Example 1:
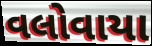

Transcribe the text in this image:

વલોવાયા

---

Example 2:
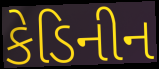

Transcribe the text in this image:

કેડિનીન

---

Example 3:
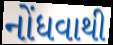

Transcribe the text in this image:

નોંધવાથી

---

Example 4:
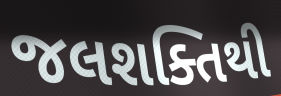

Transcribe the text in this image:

જલશક્તિથી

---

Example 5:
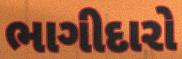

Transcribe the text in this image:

ભાગીદારો